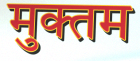
मुक्तम